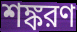
শঙ্করণ